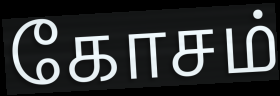
கோசம்